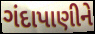
ગંદાપાણીને